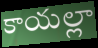
కాయల్లా